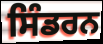
ਸਿੰਡਰਨ